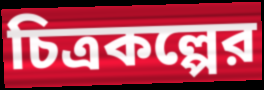
চিত্রকল্পের